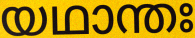
യഥാന്തഃ